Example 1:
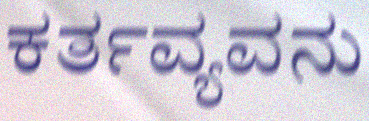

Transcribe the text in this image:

ಕರ್ತವ್ಯವನು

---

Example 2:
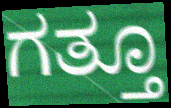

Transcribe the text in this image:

ಗತ್ತೂ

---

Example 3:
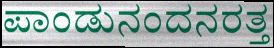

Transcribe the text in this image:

ಪಾಂಡುನಂದನರತ್ತ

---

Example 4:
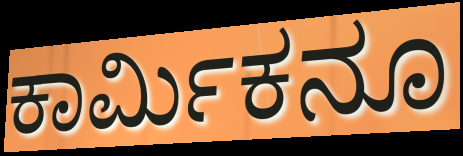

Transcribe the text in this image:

ಕಾರ್ಮಿಕನೂ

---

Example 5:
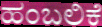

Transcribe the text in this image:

ಹಂಬಲಿಕೆ